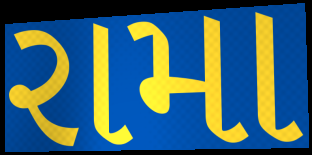
રામા